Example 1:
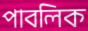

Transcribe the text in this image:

পাবলিক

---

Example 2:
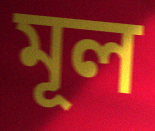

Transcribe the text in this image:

মূল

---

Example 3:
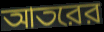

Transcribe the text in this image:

আতরের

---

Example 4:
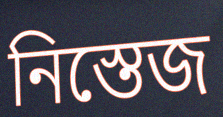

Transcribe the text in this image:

নিস্তেজ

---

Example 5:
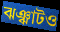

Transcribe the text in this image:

ঝঞ্ঝাটও